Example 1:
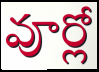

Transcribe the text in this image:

వూర్లో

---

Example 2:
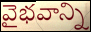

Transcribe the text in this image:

వైభవాన్ని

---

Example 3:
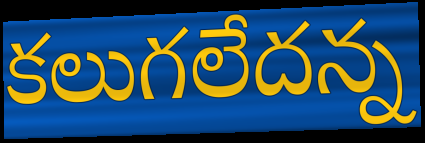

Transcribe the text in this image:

కలుగలేదన్న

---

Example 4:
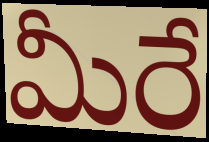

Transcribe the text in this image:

మీరే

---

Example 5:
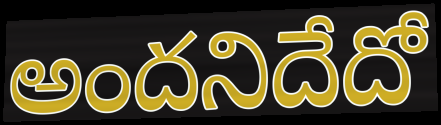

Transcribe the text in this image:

అందనిదేదో